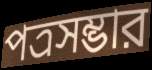
পত্রসম্ভার